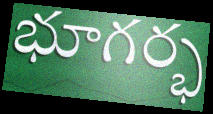
భూగర్భ